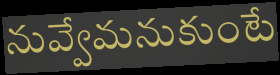
నువ్వేమనుకుంటే